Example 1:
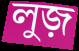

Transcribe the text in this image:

লুজ়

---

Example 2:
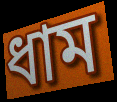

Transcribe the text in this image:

ধাম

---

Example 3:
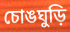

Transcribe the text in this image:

চোঙঘুড়ি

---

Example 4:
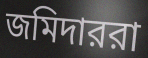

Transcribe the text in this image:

জমিদাররা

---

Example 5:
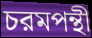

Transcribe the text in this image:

চরমপন্থী